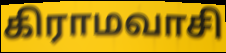
கிராமவாசி